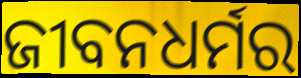
ଜୀବନଧର୍ମର